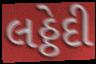
લઠ્ઠેદી